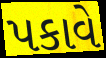
પકાવે